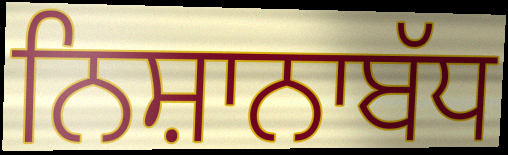
ਨਿਸ਼ਾਨਾਬੱਧ